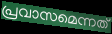
പ്രവാസമെന്നത്